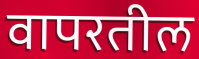
वापरतील